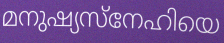
മനുഷ്യസ്നേഹിയെ